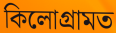
কিলোগ্ৰামত